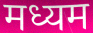
मध्यम